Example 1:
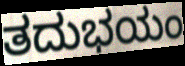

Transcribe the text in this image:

ತದುಭಯಂ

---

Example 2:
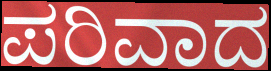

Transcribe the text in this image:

ಪರಿವಾದ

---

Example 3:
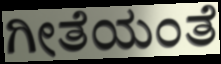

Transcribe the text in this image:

ಗೀತೆಯಂತೆ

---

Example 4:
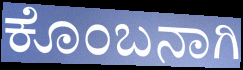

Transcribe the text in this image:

ಕೊಂಬನಾಗಿ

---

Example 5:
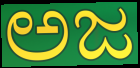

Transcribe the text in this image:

ಅಜ